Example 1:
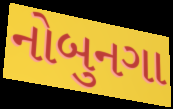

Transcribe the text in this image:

નોબુનગા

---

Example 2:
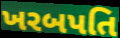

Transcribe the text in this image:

ખરબપતિ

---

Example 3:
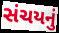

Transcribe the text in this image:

સંચયનું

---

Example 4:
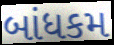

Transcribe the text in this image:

બાંધકમ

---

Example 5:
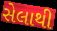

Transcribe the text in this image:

સેલાથી